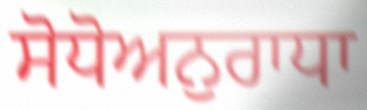
ਸੋਧੋਅਨੁਰਾਧਾ